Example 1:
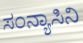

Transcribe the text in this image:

ಸಂನ್ಯಾಸಿನಿ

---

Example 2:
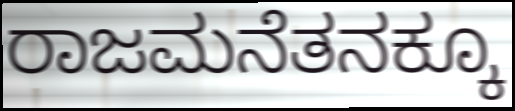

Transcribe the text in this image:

ರಾಜಮನೆತನಕ್ಕೂ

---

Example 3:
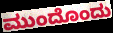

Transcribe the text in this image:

ಮುಂದೊಂದು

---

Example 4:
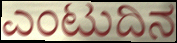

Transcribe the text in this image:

ಎಂಟುದಿನ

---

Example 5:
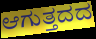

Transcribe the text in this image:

ಆಗುತ್ತದದ